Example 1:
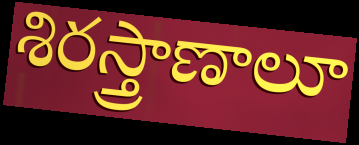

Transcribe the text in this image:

శిరస్త్రాణాలూ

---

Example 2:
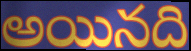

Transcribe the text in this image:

అయినది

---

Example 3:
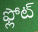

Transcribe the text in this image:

ఫ్లోట్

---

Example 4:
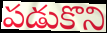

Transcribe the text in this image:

పడుకొని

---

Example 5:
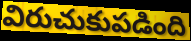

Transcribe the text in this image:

విరుచుకుపడింది